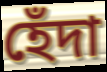
হেঁদা